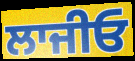
ਲਾਜੀਓ